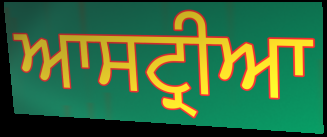
ਆਸਟ੍ਰੀਆ